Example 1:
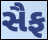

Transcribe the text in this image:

સૈફ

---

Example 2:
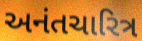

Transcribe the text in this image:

અનંતચારિત્ર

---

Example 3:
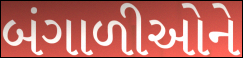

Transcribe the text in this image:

બંગાળીઓને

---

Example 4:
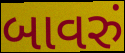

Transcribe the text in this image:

બાવરું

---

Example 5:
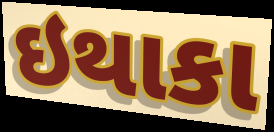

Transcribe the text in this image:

ઇથાકા